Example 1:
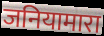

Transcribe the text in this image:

जनियामारा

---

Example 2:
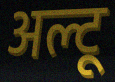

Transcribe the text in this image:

अल्टू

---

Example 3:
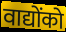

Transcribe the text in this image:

वाद्योंको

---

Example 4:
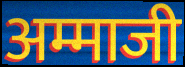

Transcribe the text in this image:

अम्माजी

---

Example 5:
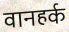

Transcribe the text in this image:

वानहर्क